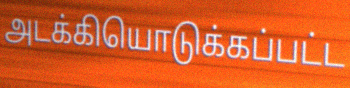
அடக்கியொடுக்கப்பட்ட